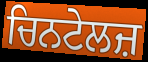
ਚਿਨਟੇਲਜ਼